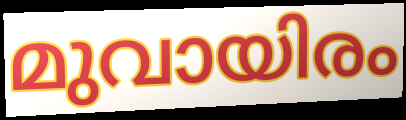
മുവായിരം